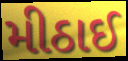
મીઠાઈ